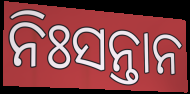
ନିଃସନ୍ତାନ